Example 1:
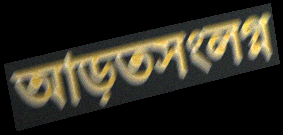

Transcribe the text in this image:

আড়তসংলগ্ন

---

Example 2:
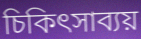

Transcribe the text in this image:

চিকিৎসাব্যয়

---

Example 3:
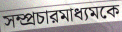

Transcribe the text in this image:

সম্প্রচারমাধ্যমকে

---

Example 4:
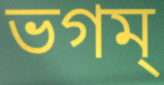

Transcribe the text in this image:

ভগম্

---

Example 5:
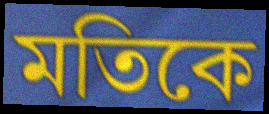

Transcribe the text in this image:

মতিকে